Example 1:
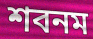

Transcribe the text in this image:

শবনম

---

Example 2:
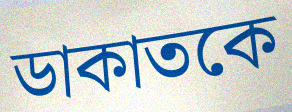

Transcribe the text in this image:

ডাকাতকে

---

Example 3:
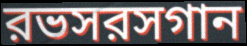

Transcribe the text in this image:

রভসরসগান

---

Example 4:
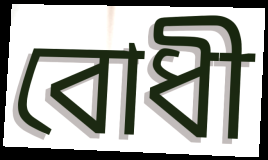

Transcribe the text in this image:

বোধী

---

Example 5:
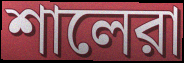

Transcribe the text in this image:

শালেরা